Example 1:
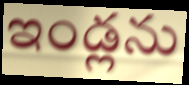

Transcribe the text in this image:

ఇండ్లను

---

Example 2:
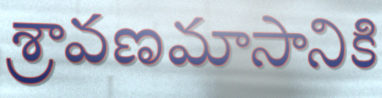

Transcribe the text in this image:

శ్రావణమాసానికి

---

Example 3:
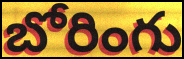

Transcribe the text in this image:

బోరింగు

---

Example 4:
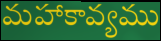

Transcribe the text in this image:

మహాకావ్యము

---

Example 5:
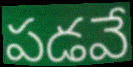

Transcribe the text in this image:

పడవే